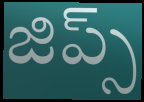
జిప్స్